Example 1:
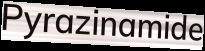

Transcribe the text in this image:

Pyrazinamide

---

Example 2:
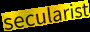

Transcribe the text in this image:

secularist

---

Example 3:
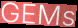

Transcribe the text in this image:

GEMs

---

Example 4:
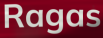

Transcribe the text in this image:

Ragas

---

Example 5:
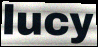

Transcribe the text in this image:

lucy